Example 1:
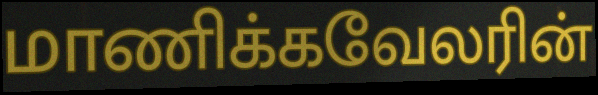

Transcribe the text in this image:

மாணிக்கவேலரின்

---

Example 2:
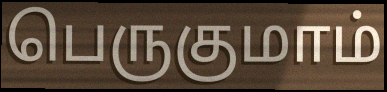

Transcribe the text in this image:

பெருகுமாம்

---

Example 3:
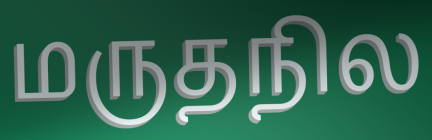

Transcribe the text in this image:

மருதநில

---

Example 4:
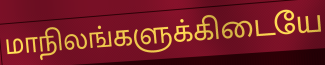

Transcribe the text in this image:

மாநிலங்களுக்கிடையே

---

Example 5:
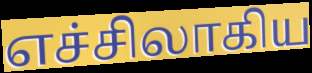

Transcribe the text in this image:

எச்சிலாகிய